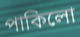
পাকিলো